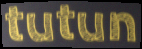
tutun